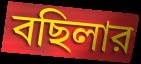
বছিলার